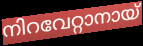
നിറവേറ്റാനായ്